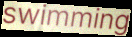
swimming